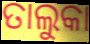
ତାଲୁକା